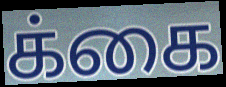
க்கை